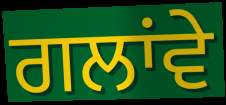
ਗਲਾਂਵੇ